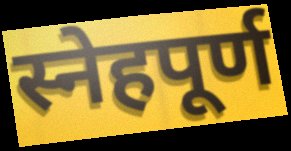
स्नेहपूर्ण